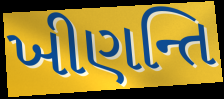
ખીણન્તિ